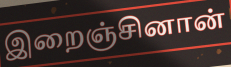
இறைஞ்சினான்